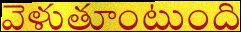
వెళుతూంటుంది